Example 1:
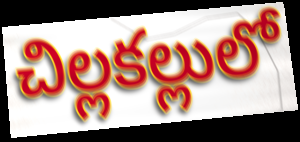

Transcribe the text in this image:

చిల్లకల్లులో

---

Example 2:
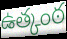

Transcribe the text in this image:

ఉత్కంఠ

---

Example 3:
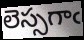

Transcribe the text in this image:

లెస్సగాఁ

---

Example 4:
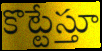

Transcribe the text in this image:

కొట్టేస్తూ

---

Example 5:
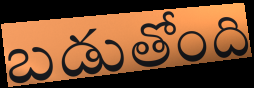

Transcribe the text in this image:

బడుతోంది